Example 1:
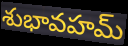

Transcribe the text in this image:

శుభావహమ్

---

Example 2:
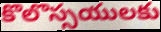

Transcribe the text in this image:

కొలొస్సయులకు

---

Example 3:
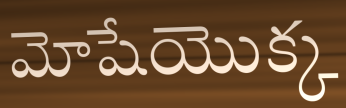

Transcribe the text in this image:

మోషేయొక్క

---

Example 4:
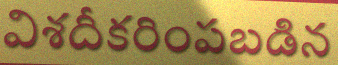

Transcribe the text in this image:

విశదీకరింపబడిన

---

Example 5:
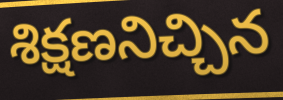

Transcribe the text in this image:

శిక్షణనిచ్చిన